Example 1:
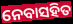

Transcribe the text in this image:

ନେବାସହିତ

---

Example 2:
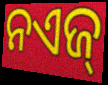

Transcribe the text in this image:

ନଏଜ୍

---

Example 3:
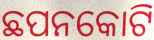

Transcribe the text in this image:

ଛପନକୋଟି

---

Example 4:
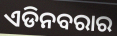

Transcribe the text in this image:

ଏଡିନବରାର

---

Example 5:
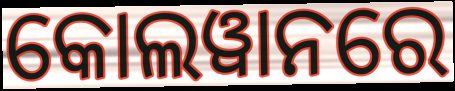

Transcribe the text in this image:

କୋଲୱାନରେ